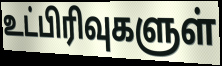
உட்பிரிவுகளுள்